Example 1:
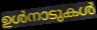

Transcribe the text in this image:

ഉൾനാടുകൾ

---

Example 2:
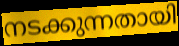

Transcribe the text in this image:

നടക്കുന്നതായി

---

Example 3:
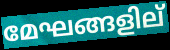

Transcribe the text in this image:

മേഘങ്ങളില്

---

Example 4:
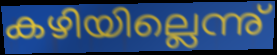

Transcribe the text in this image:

കഴിയില്ലെന്നു്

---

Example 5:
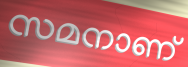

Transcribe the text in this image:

സമനാണ്